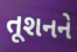
તૂશનને